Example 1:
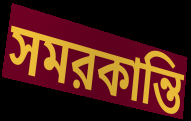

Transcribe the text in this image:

সমরকান্তি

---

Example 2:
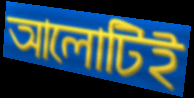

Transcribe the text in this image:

আলোটিই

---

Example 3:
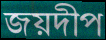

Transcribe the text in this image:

জয়দীপ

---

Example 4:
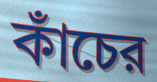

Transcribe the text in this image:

কাঁচের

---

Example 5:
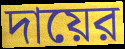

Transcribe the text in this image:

দায়ের